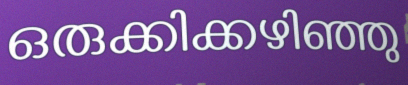
ഒരുക്കിക്കഴിഞ്ഞു